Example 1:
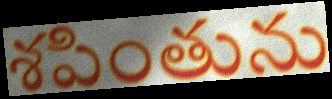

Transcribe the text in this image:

శపింతును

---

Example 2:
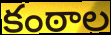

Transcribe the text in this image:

కంఠాల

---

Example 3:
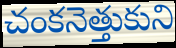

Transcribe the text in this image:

చంకనెత్తుకుని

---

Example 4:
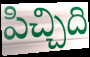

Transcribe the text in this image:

పిచ్చిది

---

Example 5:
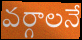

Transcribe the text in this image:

వర్గాలనే